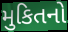
મુકિતનો